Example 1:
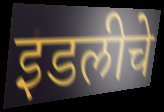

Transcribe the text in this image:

इडलीचे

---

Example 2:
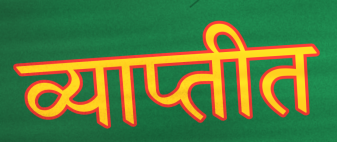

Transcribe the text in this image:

व्याप्तीत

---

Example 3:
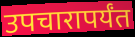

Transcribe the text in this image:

उपचारापर्यंत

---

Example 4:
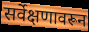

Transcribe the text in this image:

सर्वेक्षणावरून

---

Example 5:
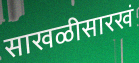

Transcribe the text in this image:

साखळीसारखं